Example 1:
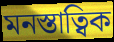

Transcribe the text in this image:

মনস্তাত্বিক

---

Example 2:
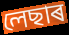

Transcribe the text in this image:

লেছাৰ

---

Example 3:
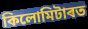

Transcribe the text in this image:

কিলোমিটাৰত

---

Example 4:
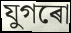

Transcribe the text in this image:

যুগৰো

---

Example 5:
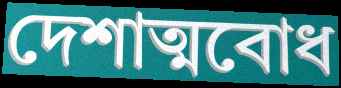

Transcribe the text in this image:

দেশাত্মবোধ